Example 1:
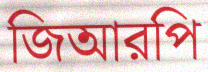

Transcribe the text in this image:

জিআরপি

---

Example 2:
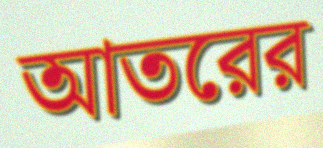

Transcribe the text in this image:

আতরের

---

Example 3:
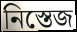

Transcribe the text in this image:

নিস্তেজ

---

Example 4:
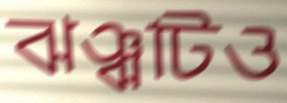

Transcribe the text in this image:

ঝঞ্ঝাটও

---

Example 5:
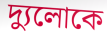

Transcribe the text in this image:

দ্যুলোকে